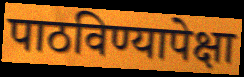
पाठविण्यापेक्षा